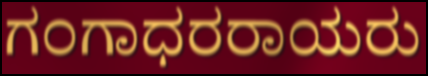
ಗಂಗಾಧರರಾಯರು